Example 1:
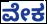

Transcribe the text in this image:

ವೇಕ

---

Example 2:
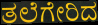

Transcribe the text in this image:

ತಲೆಗೇರಿದ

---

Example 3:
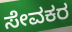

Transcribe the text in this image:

ಸೇವಕರ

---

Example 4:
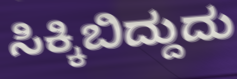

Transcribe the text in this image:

ಸಿಕ್ಕಿಬಿದ್ದುದು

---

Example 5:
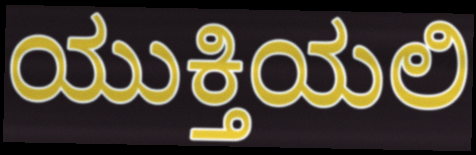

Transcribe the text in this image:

ಯುಕ್ತಿಯಲಿ